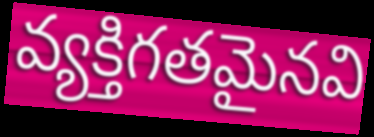
వ్యక్తిగతమైనవి